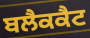
ਬਲੈਕਕੈਟ